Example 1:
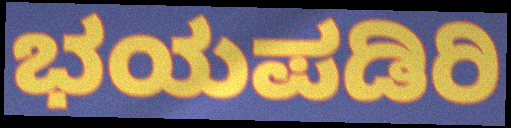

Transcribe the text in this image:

ಭಯಪಡಿರಿ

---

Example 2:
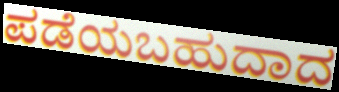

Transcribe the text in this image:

ಪಡೆಯಬಹುದಾದ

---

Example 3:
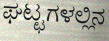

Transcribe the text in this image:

ಘಟ್ಟಗಳಲ್ಲಿನ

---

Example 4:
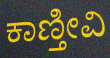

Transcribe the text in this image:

ಕಾಣ್ತೀವಿ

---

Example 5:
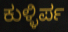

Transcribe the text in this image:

ಕುಳ್ಳಿರ್ಪ